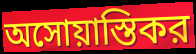
অসোয়াস্তিকর